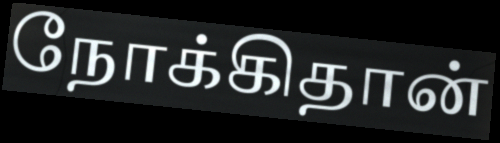
நோக்கிதான்